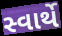
સ્વાર્થે